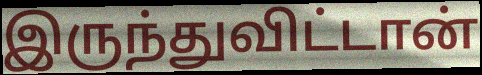
இருந்துவிட்டான்